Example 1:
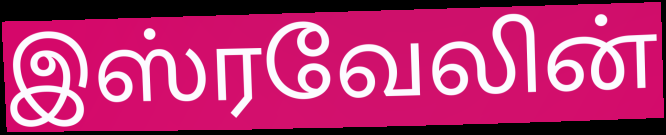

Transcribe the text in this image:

இஸ்ரவேலின்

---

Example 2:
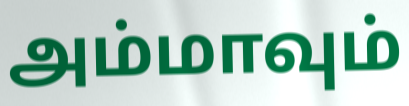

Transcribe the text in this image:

அம்மாவும்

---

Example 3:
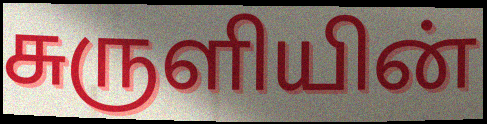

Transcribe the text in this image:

சுருளியின்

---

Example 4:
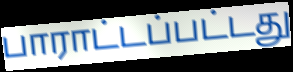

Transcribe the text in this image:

பாராட்டப்பட்டது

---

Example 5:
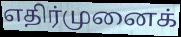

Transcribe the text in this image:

எதிர்முனைக்